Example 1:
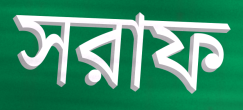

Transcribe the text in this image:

সরাফ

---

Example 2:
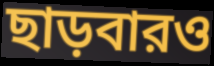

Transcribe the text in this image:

ছাড়বারও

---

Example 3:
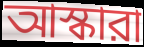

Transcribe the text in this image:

আস্কারা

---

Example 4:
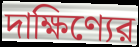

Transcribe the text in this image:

দাক্ষিণ্যের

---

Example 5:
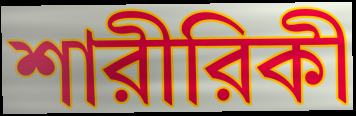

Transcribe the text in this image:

শারীরিকী